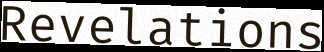
Revelations